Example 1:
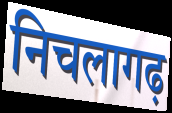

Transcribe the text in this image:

निचलागढ़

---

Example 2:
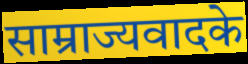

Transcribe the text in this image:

साम्राज्यवादके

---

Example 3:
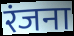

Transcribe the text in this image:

रंजना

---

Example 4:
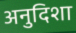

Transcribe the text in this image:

अनुदिशा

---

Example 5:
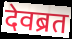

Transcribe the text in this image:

देवब्रत